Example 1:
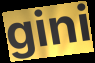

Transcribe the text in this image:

gini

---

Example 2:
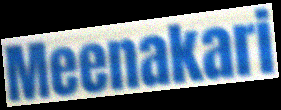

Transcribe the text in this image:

Meenakari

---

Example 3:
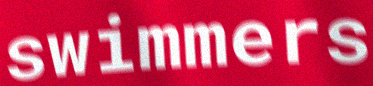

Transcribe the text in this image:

swimmers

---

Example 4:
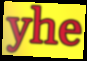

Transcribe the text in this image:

yhe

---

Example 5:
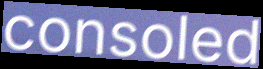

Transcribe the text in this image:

consoled